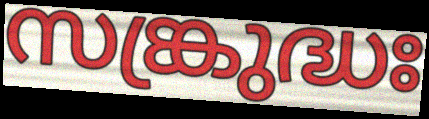
സങ്ക്രുദ്ധഃ